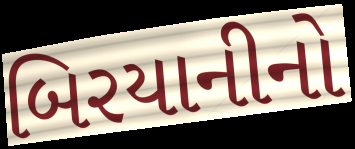
બિરયાનીનો